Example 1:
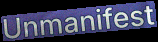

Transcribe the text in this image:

Unmanifest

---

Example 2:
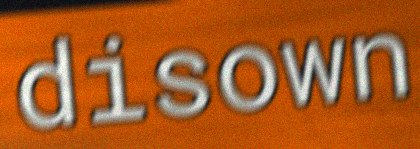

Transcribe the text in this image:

disown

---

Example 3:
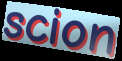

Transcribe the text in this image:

scion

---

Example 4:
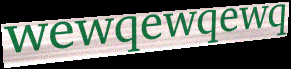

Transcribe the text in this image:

wewqewqewq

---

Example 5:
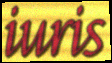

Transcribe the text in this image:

iuris